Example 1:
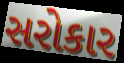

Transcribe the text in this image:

સરોકાર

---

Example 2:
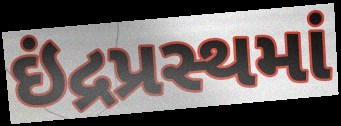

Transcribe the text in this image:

ઇંદ્રપ્રસ્થમાં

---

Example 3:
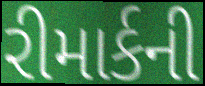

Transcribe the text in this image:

રીમાર્કની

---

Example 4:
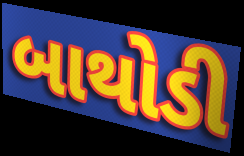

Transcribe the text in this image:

બાથોડી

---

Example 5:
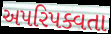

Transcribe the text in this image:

અપરિપક્વતા